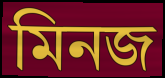
মিনজ